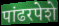
पांढरपेशे